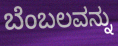
ಬೆಂಬಲವನ್ನು